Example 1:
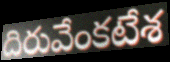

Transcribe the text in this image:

దిరువేంకటేశ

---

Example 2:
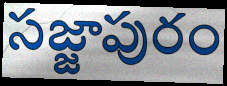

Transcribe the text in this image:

సజ్జాపురం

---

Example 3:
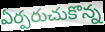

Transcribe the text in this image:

ఏర్పరుచుకొన్న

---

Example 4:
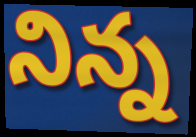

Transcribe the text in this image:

నిన్న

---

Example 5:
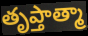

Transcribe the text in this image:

తృప్తాత్మా